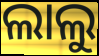
ଲାଲୁ